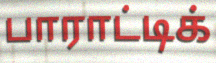
பாராட்டிக்